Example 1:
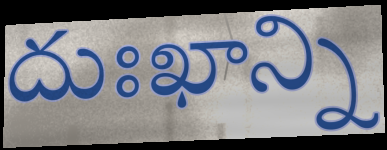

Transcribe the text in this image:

దుఃఖాన్ని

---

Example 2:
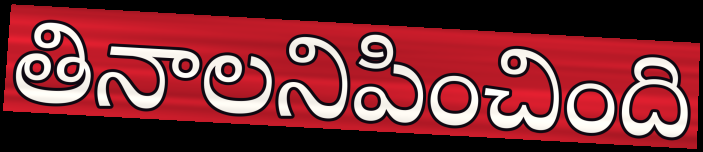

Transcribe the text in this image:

తినాలనిపించింది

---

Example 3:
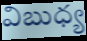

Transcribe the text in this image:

విబుధ్య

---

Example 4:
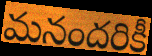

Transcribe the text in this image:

మనందరికీ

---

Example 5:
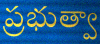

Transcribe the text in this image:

ప్రభుత్వా